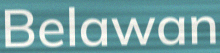
Belawan